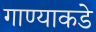
गाण्याकडे